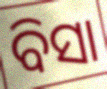
ବିସା